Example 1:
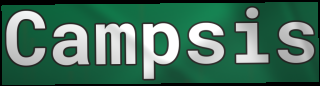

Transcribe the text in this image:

Campsis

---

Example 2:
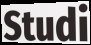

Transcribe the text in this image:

Studi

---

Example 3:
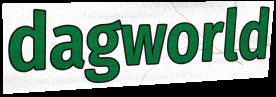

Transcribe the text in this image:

dagworld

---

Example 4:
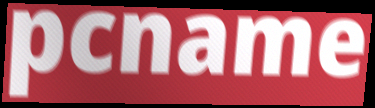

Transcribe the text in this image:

pcname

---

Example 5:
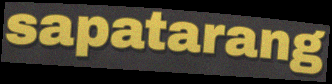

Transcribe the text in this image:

sapatarang